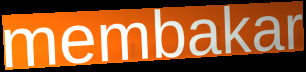
membakar